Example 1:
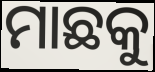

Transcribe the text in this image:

ମାଛକୁ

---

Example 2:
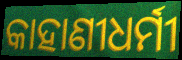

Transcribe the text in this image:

କାହାଣୀଧର୍ମୀ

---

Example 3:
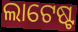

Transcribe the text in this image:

ଲାଟେଷ୍ଟ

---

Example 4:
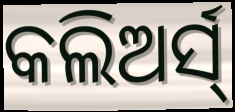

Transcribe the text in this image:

କଲିଅର୍ସ୍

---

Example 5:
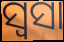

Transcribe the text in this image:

ସ୍ୱସା